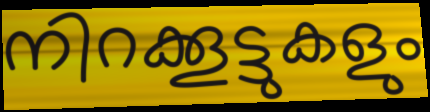
നിറക്കൂട്ടുകളും